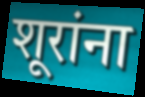
शूरांना